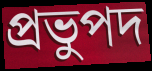
প্রভুপদ